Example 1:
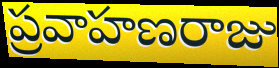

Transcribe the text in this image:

ప్రవాహణరాజు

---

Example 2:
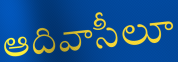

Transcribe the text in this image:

ఆదివాసీలూ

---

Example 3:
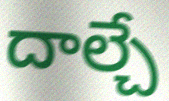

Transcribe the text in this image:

దాల్చే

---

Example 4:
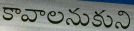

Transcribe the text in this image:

కావాలనుకుని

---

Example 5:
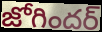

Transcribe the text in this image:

జోగిందర్